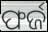
ଫର୍ଜ